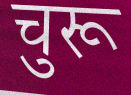
चुरू